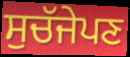
ਸੁਚੱਜੇਪਣ